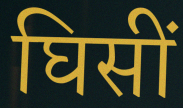
घिसीं